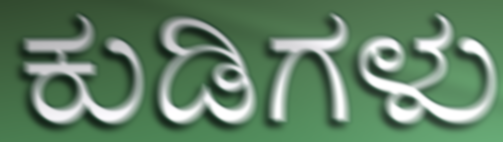
ಕುಡಿಗಳು